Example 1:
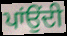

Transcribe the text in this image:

ਪਾਂਉਂਦੀ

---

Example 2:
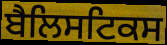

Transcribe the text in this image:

ਬੈਲਿਸਟਿਕਸ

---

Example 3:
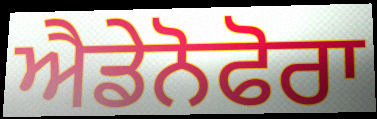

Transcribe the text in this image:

ਐਡੇਨੋਫੋਰਾ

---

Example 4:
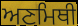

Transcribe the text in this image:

ਅਣਮਿਥੀ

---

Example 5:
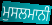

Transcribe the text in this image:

ਮੁਸਲਮਾਨੀ